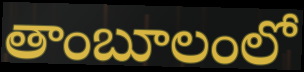
తాంబూలంలో